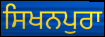
ਸਿਖਨਪੁਰਾ